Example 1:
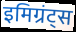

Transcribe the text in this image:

इमिग्रंट्स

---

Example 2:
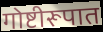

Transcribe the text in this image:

गोष्टीरूपात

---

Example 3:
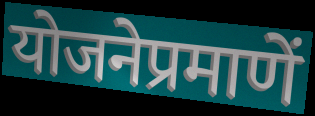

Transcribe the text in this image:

योजनेप्रमाणें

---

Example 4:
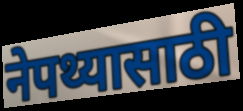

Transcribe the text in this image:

नेपथ्यासाठी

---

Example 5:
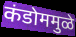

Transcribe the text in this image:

कंडोममुळे